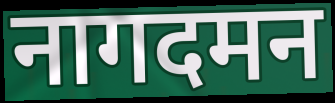
नागदमन